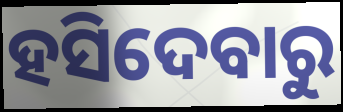
ହସିଦେବାରୁ